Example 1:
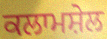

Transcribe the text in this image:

ਕਲਾਮਸ਼ੇਲ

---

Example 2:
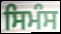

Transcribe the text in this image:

ਸਿਮੰਸ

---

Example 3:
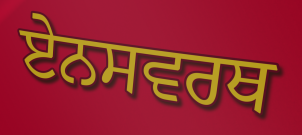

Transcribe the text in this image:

ਏਨਸਵਰਥ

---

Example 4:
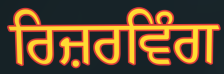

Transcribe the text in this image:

ਰਿਜ਼ਰਵਿੰਗ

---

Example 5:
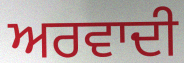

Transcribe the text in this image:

ਅਰਵਾਦੀ